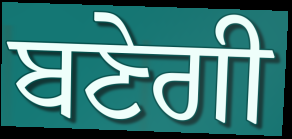
ਬਣੇਗੀ